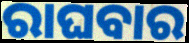
ରାଘବାର